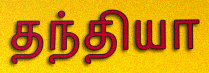
தந்தியா